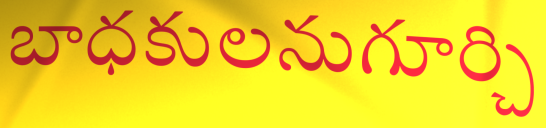
బాధకులనుగూర్చి